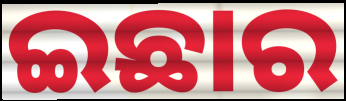
ଇଛାର